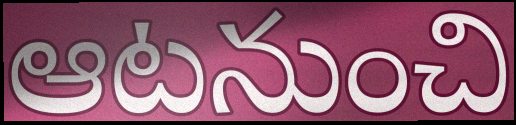
ఆటనుంచి